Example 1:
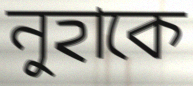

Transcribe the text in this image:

নুহাকে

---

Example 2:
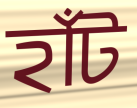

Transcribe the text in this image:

হাঁট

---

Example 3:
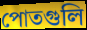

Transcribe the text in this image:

পোতগুলি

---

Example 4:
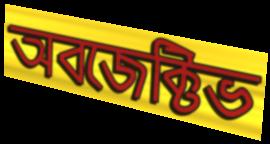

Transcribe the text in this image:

অবজেক্টিভ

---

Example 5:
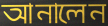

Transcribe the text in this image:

আনালেন